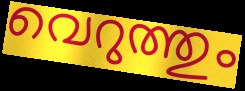
വെറുത്തും